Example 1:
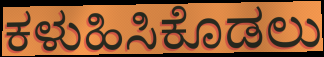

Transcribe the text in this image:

ಕಳುಹಿಸಿಕೊಡಲು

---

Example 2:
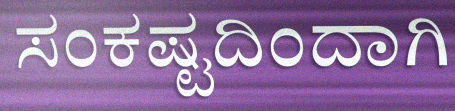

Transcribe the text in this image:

ಸಂಕಷ್ಟದಿಂದಾಗಿ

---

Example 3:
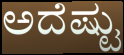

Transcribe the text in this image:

ಅದೆಷ್ಟು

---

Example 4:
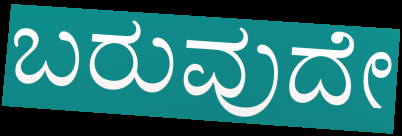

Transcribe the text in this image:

ಬರುವುದೇ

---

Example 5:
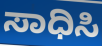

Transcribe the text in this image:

ಸಾಧಿಸಿ